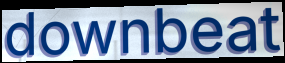
downbeat